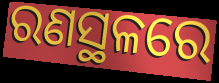
ରଣସ୍ଥଳରେ